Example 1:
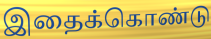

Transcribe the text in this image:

இதைக்கொண்டு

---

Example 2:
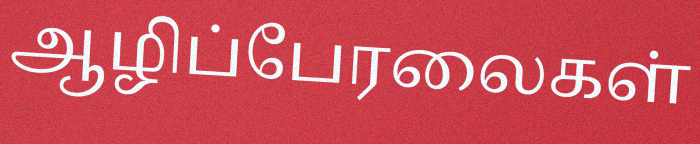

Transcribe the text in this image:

ஆழிப்பேரலைகள்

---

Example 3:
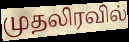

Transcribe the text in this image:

முதலிரவில்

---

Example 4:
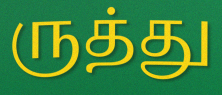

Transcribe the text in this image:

ருத்து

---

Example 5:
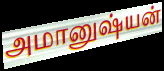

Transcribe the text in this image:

அமானுஷ்யன்